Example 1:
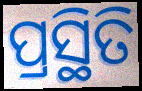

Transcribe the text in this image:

ପ୍ରସ୍ଥିତି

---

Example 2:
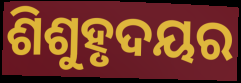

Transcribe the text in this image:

ଶିଶୁହୃଦୟର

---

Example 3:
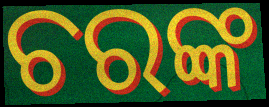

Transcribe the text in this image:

ଚରଙ୍କ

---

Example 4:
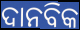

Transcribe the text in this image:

ଦାନବିକ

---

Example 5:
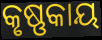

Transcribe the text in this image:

କୃଷ୍ଣକାୟ